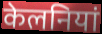
केलनियां